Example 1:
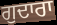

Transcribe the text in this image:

ਗੁਦਾਰਾ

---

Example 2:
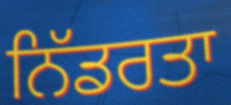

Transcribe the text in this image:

ਨਿੱਡਰਤਾ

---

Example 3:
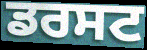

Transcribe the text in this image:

ਡਰਸਟ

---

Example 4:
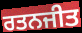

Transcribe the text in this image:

ਰਤਨਜੀਤ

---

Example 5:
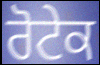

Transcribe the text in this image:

ਰੋਟੇਕ